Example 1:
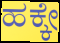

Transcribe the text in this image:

ಹಕ್ಕೇ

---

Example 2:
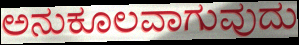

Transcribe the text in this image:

ಅನುಕೂಲವಾಗುವುದು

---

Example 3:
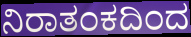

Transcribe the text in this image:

ನಿರಾತಂಕದಿಂದ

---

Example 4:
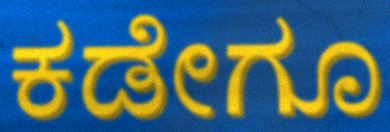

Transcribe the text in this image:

ಕಡೇಗೂ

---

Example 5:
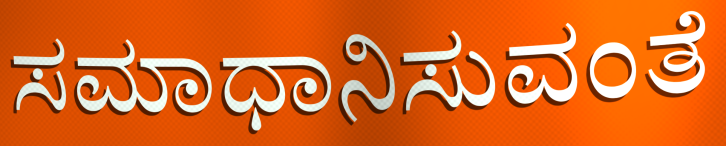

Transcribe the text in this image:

ಸಮಾಧಾನಿಸುವಂತೆ